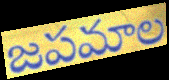
జపమాల